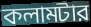
কলামটার